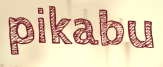
pikabu